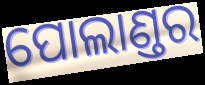
ପୋଲାଣ୍ଡର